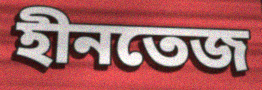
হীনতেজ